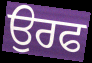
ਉਰਫ